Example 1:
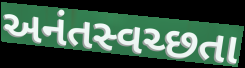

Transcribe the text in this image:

અનંતસ્વચ્છતા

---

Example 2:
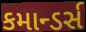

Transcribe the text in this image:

કમાન્ડર્સ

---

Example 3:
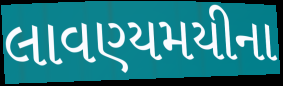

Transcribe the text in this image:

લાવણ્યમયીના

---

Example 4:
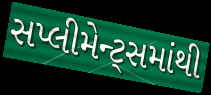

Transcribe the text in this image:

સપ્લીમેન્ટ્સમાંથી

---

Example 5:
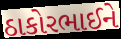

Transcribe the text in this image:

ઠાકોરભાઈને